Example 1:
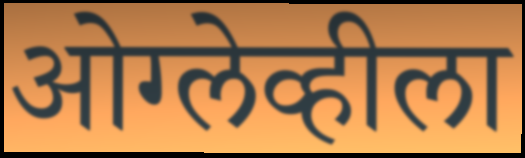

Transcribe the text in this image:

ओग्लेव्हीला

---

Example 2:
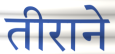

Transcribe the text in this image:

तीराने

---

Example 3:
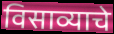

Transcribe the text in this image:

विसाव्याचे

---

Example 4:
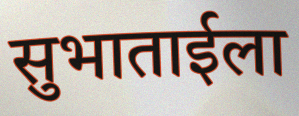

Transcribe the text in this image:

सुभाताईला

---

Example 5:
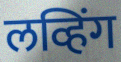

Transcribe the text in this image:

लव्हिंग